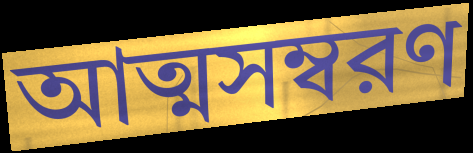
আত্মসম্বরণ